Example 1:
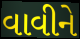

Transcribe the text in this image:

વાવીને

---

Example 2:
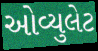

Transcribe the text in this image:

ઓવ્યુલેટ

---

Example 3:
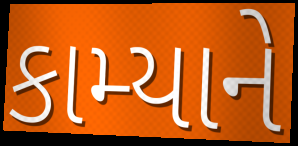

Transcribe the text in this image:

કામ્યાને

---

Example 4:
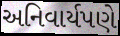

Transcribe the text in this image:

અનિવાર્યપણે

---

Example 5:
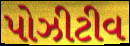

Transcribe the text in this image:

પોઝીટીવ